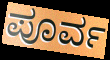
ಪೂರ್ವ